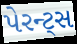
પેરન્ટ્સ